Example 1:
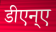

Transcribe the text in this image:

डीएन्ए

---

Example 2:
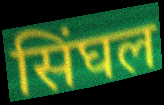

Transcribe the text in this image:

सिंघल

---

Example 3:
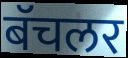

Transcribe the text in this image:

बॅचलर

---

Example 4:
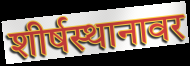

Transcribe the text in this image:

शीर्षस्थानावर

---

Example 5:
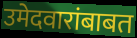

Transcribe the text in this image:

उमेदवारांबाबत